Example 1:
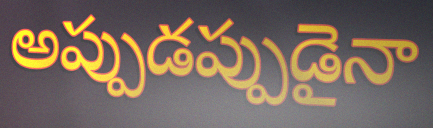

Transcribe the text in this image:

అప్పుడప్పుడైనా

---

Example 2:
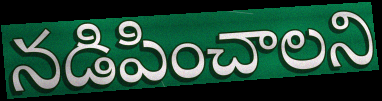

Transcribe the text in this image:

నడిపించాలని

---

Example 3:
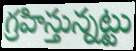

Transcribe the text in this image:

గ్రహిస్తున్నట్టు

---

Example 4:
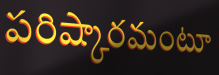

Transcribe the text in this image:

పరిష్కారమంటూ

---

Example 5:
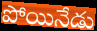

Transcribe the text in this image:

పోయినేడు